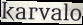
karvalo